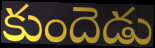
కుందెడు